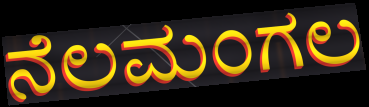
ನೆಲಮಂಗಲ